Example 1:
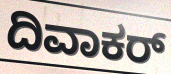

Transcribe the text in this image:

ದಿವಾಕರ್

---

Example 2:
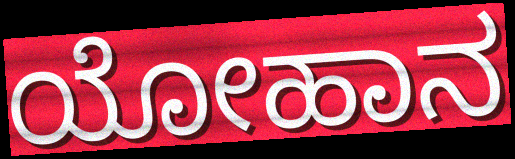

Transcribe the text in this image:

ಯೋಹಾನ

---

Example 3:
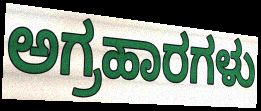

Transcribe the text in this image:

ಅಗ್ರಹಾರಗಳು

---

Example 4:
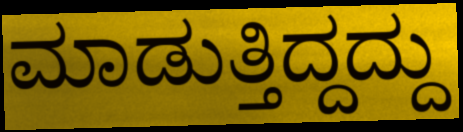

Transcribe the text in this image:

ಮಾಡುತ್ತಿದ್ದದ್ದು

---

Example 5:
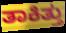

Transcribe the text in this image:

ತಾಕಿತ್ತು